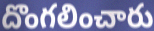
దొంగలించారు